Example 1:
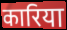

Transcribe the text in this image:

कारिया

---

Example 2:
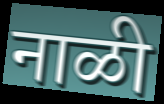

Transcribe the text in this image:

नाळी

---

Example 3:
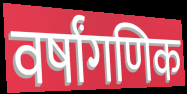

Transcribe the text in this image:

वर्षांगणिक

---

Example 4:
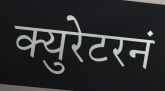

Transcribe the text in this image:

क्युरेटरनं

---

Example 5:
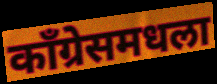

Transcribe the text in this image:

काँग्रेसमधला